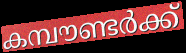
കമ്പൗണ്ടർക്ക്